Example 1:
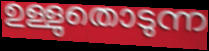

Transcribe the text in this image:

ഉള്ളുതൊടുന്ന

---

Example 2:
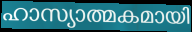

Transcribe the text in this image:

ഹാസ്യാത്മകമായി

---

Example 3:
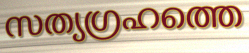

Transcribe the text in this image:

സത്യഗ്രഹത്തെ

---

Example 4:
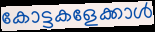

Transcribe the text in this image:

കോട്ടകളേക്കാൾ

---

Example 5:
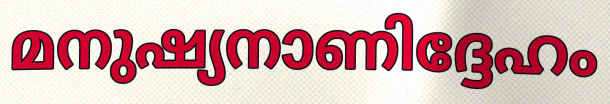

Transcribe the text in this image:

മനുഷ്യനാണിദ്ദേഹം